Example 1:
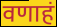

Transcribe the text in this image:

वणाहं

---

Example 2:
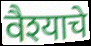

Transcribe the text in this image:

वैश्याचे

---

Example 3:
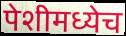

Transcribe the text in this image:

पेशीमध्येच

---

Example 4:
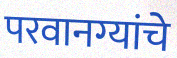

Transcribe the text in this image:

परवानग्यांचे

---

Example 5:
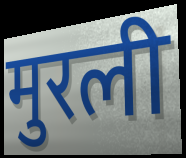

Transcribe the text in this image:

मुरली